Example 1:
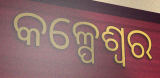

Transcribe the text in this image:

କଳ୍ପେଶ୍ୱର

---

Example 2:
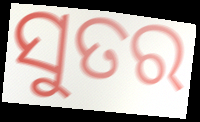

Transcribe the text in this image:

ସୁତର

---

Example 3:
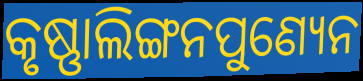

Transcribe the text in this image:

କୃଷ୍ଣାଲିଙ୍ଗନପୁଣ୍ଯେନ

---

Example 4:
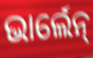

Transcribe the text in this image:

ଭାର୍ଲେନ୍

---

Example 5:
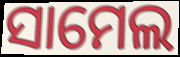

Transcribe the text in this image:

ସାମେଲ